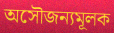
অসৌজন্যমূলক